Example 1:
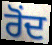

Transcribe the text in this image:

ਰੋਂਦ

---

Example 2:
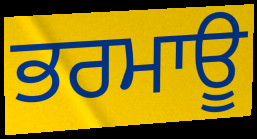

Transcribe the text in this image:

ਭਰਮਾਊ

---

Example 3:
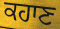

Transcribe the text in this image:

ਕਹਾਣ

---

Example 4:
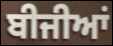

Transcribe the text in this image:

ਬੀਜੀਆਂ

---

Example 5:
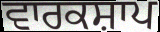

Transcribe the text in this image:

ਵਾਰਕਸ਼ਾਪ